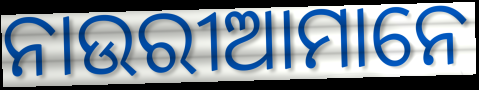
ନାଉରୀଆମାନେ